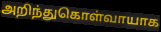
அறிந்துகொள்வாயாக